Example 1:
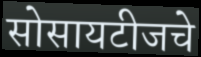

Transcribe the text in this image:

सोसायटीजचे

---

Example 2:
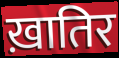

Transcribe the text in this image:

ख़ातिर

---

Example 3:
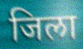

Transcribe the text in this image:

जिला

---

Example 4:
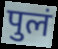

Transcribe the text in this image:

पुलं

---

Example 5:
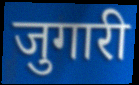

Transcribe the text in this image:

जुगारी